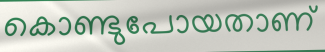
കൊണ്ടുപോയതാണ്